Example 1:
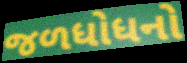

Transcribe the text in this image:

જળધોધનો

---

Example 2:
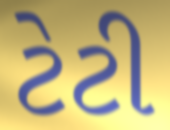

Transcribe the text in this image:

ટેટી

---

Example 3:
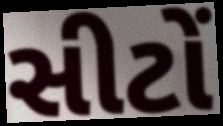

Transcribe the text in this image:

સીટોં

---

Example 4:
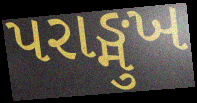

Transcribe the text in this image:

પરાઙ્મુખ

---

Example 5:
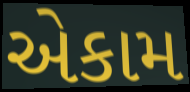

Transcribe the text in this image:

એકામ